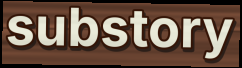
substory